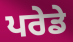
ਪਰੇਡੇ